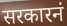
सरकारनं